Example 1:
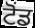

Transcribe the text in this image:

ਟੋਂਡ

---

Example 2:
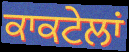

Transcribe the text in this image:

ਕਾਕਟੇਲਾਂ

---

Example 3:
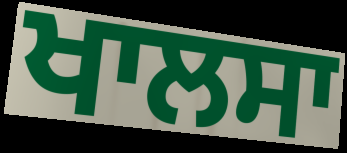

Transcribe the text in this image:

ਖਾਲਸਾ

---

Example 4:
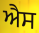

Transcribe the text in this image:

ਐਸ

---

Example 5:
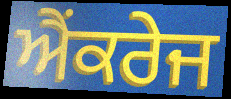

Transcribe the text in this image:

ਐਂਕਰੇਜ